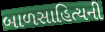
બાળસાહિત્યની